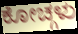
ಕೋಚ್ಗಳು